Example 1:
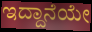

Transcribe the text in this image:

ಇದ್ದಾನೆಯೇ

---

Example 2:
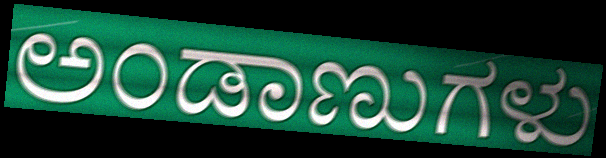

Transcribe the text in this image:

ಅಂಡಾಣುಗಳು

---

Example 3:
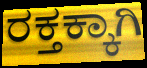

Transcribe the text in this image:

ರಕ್ತಕ್ಕಾಗಿ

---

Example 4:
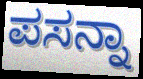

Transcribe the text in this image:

ಪಸನ್ನಾ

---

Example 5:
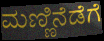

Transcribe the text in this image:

ಮಣ್ಣಿನೆಡೆಗೆ